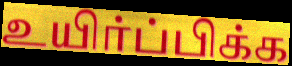
உயிர்ப்பிக்க